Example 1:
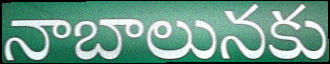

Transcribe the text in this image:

నాబాలునకు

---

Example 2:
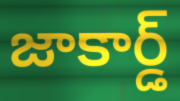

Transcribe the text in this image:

జాకార్డ్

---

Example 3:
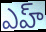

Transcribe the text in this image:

ఎహ్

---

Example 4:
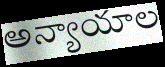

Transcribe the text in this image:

అన్యాయాల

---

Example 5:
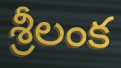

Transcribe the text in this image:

శ్రీలంక